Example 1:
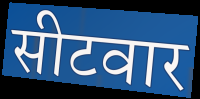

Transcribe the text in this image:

सीटवार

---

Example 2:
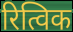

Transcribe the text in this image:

रित्विक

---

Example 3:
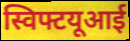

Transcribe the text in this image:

स्विफ्टयूआई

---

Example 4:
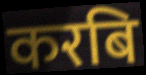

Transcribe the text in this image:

करबि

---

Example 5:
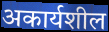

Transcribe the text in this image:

अकार्यशील